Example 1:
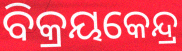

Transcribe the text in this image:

ବିକ୍ରୟକେନ୍ଦ୍ର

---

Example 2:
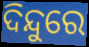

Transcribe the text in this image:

ଦିନ୍ଦୁରେ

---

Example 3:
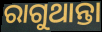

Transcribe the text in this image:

ରାଗୁଥାନ୍ତା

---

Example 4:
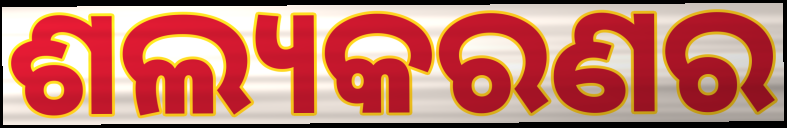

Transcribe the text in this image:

ଶଲ୍ୟକରଣର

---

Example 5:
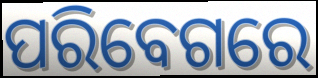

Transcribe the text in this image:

ପରିବେଗରେ